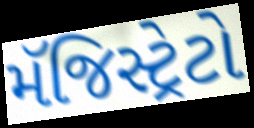
મૅજિસ્ટ્રેટો